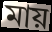
মায়